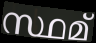
സ്ഥമ്